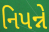
નિપન્ને